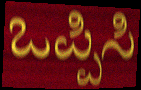
ಒಪ್ಪಿಸಿ